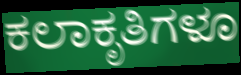
ಕಲಾಕೃತಿಗಳೂ